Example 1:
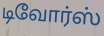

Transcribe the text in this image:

டிவோர்ஸ்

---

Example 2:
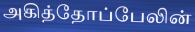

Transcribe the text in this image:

அகித்தோப்பேலின்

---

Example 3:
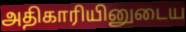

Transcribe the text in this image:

அதிகாரியினுடைய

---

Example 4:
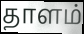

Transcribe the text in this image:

தாளம்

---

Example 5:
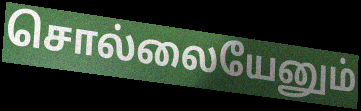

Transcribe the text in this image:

சொல்லையேனும்